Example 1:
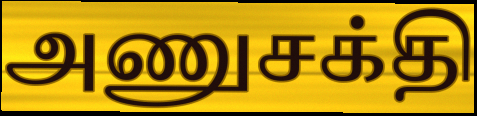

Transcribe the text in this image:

அணுசக்தி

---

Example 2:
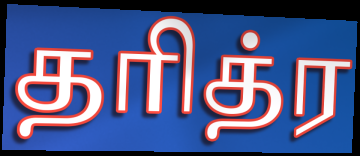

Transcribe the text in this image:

தரித்ர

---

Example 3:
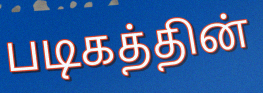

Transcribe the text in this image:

படிகத்தின்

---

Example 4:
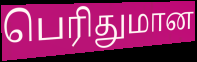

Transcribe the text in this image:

பெரிதுமான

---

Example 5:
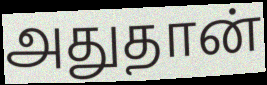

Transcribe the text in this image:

அதுதான்